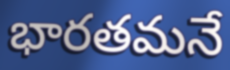
భారతమనే